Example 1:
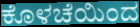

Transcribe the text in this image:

ಕೊಳಚೆಯಿಂದ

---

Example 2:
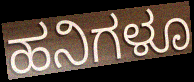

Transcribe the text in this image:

ಹನಿಗಳೂ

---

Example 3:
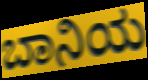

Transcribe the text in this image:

ಬಾನಿಯ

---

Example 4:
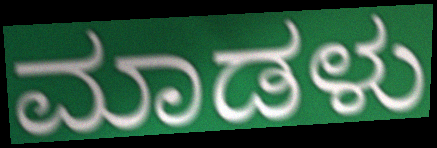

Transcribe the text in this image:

ಮಾಡಳು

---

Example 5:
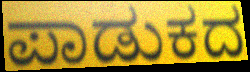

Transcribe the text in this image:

ಪಾಡುಕದ